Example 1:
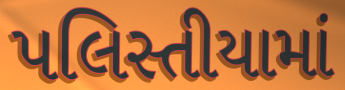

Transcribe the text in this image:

પલિસ્તીયામાં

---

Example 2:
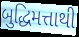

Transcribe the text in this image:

બુદ્ધિમત્તાથી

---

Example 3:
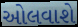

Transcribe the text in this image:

ઓલવાશે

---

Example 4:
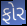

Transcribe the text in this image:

ફોર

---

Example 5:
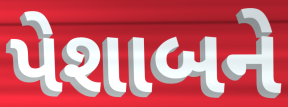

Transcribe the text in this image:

પેશાબને